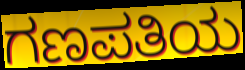
ಗಣಪತಿಯ